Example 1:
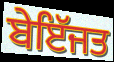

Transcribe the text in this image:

ਬੇਇੱਜਤ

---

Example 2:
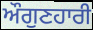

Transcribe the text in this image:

ਔਗੁਣਹਾਰੀ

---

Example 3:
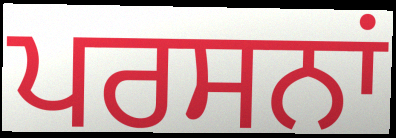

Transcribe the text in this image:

ਪਰਸਨਾਂ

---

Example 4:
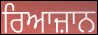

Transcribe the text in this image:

ਰਿਆਜ਼ਾਨ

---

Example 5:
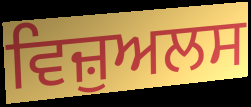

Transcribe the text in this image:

ਵਿਜ਼ੁਅਲਸ